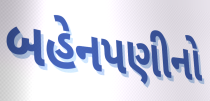
બહેનપણીનો